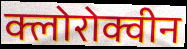
क्लोरोक्वीन